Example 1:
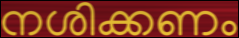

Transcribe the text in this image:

നശിക്കണം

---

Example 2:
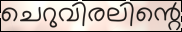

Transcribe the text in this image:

ചെറുവിരലിന്റെ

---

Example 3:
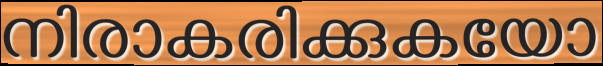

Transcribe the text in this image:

നിരാകരിക്കുകയോ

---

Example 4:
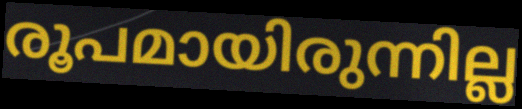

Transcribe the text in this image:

രൂപമായിരുന്നില്ല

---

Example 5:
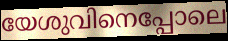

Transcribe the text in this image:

യേശുവിനെപ്പോലെ